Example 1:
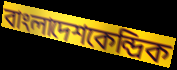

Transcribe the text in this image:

বাংলাদেশকেন্দ্রিক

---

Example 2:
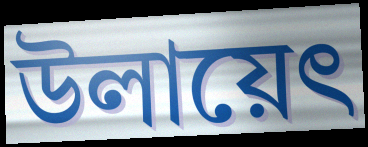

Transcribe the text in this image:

উলায়েৎ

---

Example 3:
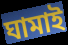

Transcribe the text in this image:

ঘামাই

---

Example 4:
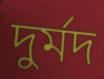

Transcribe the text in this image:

দুর্মদ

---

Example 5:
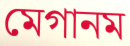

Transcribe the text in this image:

মেগানম